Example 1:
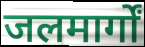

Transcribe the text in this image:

जलमार्गों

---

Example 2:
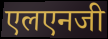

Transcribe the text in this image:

एलएनजी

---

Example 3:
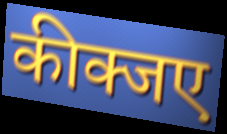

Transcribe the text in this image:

कीक्जए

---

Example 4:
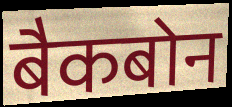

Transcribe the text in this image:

बैकबोन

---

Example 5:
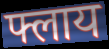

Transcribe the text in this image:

फ्लाय